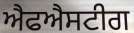
ਐਫਐਸਟੀਗ